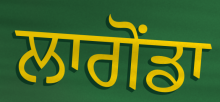
ਲਾਗੋਂਡਾ